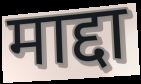
माद्दा